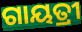
ଗାୟତ୍ରୀ